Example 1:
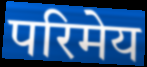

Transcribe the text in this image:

परिमेय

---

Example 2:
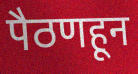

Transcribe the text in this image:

पैठणहून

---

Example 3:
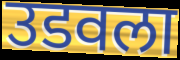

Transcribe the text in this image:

उडवला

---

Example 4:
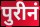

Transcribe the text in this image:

पुरीनं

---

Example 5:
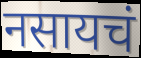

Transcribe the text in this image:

नसायचं